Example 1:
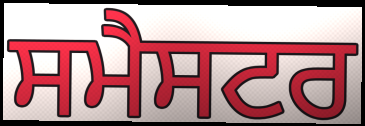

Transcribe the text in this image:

ਸਮੈਸਟਰ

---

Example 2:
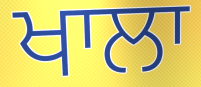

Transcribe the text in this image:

ਖਾਲਾ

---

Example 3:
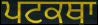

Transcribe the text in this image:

ਪਟਕਥਾ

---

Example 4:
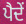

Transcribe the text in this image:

ਪੈਦੇਂ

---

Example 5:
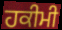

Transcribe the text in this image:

ਹਕੀਮੀ